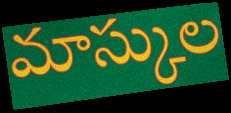
మాస్కుల